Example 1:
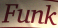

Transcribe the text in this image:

Funk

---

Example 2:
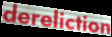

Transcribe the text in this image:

dereliction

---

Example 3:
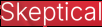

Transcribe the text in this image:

Skeptical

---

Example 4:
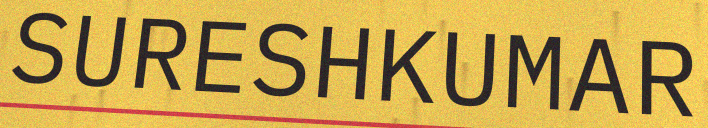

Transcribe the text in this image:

SURESHKUMAR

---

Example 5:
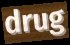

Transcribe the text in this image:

drug